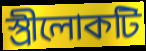
স্ত্রীলোকটি